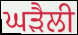
ਘੜੈਲੀ